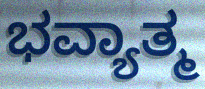
ಭವ್ಯಾತ್ಮ